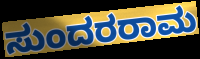
ಸುಂದರರಾಮ